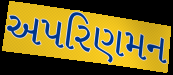
અપરિણમન